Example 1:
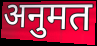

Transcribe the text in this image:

अनुमत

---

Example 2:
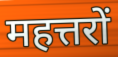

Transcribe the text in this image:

महत्तरों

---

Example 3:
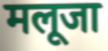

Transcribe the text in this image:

मलूजा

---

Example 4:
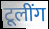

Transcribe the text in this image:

टूलींग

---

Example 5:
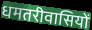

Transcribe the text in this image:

धमतरीवासियों